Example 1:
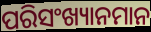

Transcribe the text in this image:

ପରିସଂଖ୍ୟାନମାନ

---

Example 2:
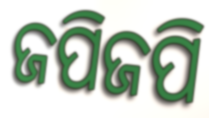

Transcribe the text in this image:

ଜପିଜପି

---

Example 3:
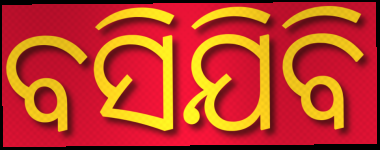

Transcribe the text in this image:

ବସିଯିବି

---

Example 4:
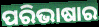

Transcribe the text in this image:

ପରିଭାଷାର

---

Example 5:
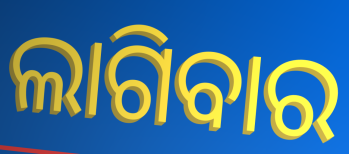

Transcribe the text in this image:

ଲାଗିବାର